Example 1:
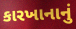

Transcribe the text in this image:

કારખાનાનું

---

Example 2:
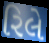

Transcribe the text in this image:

રિલે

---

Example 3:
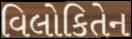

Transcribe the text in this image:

વિલોકિતેન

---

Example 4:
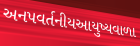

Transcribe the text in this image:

અનપવર્તનીયઆયુષ્યવાળા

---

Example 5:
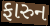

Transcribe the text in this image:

ફારુન